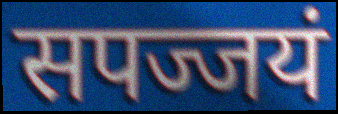
सपज्जयं